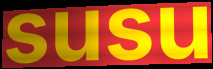
susu